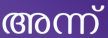
അന്ന്